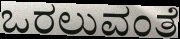
ಒರಲುವಂತೆ